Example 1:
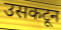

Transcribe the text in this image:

उसकटून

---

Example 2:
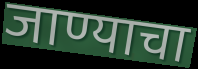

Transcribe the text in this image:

जाण्याचा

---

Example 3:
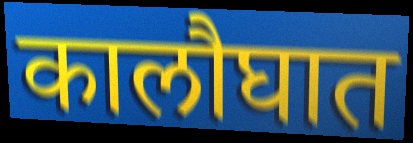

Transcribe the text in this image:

कालौघात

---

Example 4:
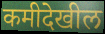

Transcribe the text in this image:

कमीदेखील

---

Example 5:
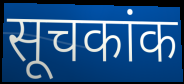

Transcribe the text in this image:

सूचकांक